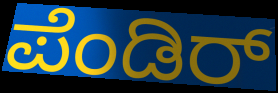
ಪೆಂಡಿರ್